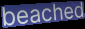
beached